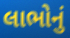
લાભોનું